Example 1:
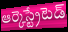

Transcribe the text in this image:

ఆర్కెస్ట్రేటెడ్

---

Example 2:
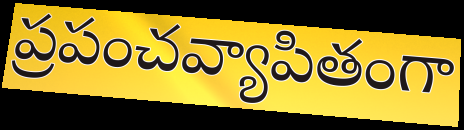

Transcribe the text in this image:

ప్రపంచవ్యాపితంగా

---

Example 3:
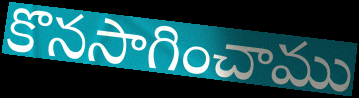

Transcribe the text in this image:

కొనసాగించాము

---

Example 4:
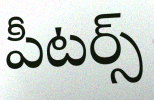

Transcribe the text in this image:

పీటర్స్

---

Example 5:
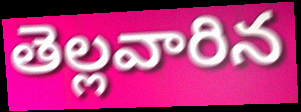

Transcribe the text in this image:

తెల్లవారిన